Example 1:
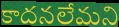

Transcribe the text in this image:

కాదనలేమని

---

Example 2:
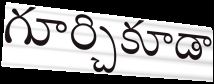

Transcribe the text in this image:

గూర్చికూడా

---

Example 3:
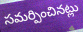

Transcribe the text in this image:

సమర్పించినట్లు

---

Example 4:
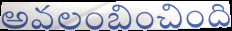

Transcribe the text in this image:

అవలంబించింది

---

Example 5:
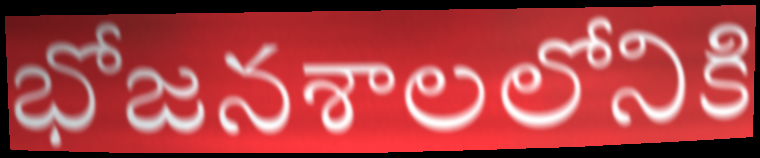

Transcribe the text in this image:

భోజనశాలలోనికి